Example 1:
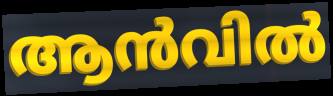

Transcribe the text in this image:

ആൻവിൽ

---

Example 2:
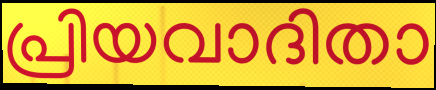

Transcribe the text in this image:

പ്രിയവാദിതാ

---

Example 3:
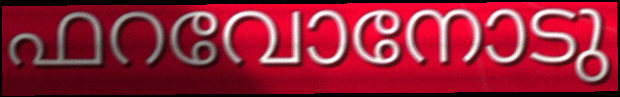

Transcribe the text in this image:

ഫറവോനോടു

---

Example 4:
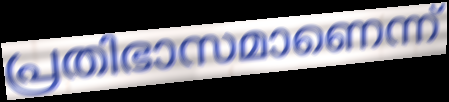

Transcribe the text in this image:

പ്രതിഭാസമാണെന്ന്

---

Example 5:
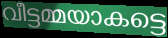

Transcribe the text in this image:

വീട്ടമ്മയാകട്ടെ